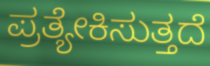
ಪ್ರತ್ಯೇಕಿಸುತ್ತದೆ